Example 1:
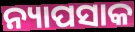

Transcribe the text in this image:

ନ୍ୟାପସାକ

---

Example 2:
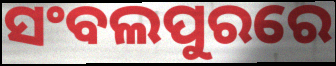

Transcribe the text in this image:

ସଂବଲପୁରରେ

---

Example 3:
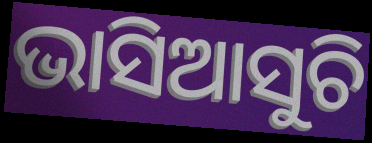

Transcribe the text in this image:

ଭାସିଆସୁଚି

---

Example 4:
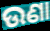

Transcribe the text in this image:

ଉଣା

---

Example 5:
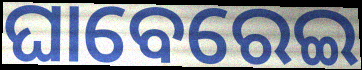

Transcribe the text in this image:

ଘାବେରେଇ